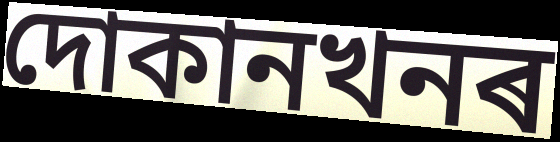
দোকানখনৰ